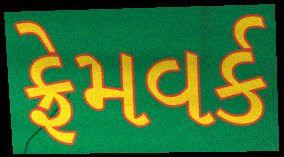
ફ્રેમવર્ક